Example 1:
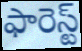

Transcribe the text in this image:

ఫారెస్ట్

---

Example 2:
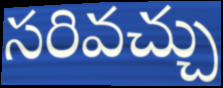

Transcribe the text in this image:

సరివచ్చు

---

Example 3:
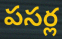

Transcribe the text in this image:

పసర్ల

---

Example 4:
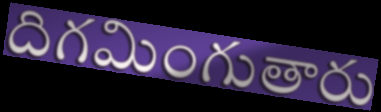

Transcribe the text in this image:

దిగమింగుతారు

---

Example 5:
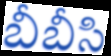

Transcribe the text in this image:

బీబీసి